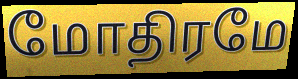
மோதிரமே